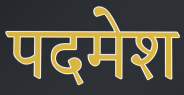
पदमेश